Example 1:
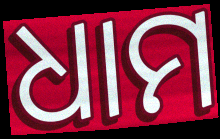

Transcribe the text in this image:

ଧାମ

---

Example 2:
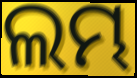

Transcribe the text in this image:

ଲମ୍ଭ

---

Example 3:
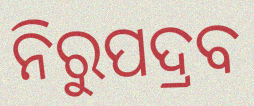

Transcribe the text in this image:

ନିରୁପଦ୍ରବ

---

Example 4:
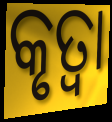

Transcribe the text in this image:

କୃତ୍ଵା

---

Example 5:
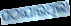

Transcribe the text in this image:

ପଠାଯାଉଥିଲା